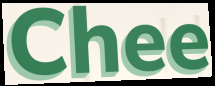
Chee